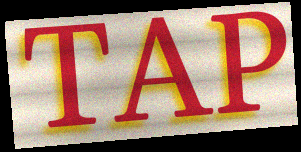
TAP